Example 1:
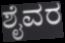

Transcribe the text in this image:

ಶೈವರ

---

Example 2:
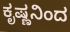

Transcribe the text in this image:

ಕೃಷ್ಣನಿಂದ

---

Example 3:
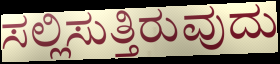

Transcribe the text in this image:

ಸಲ್ಲಿಸುತ್ತಿರುವುದು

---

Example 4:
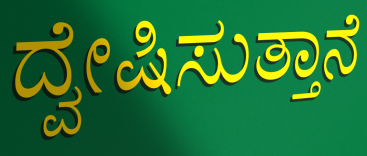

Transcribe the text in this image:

ದ್ವೇಷಿಸುತ್ತಾನೆ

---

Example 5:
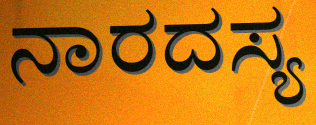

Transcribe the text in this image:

ನಾರದಸ್ಯ